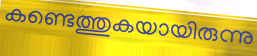
കണ്ടെത്തുകയായിരുന്നു